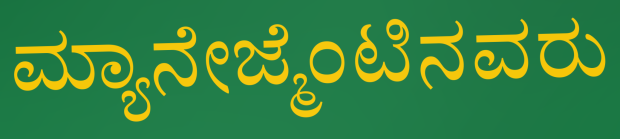
ಮ್ಯಾನೇಜ್ಮೆಂಟಿನವರು